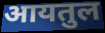
आयतुल